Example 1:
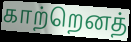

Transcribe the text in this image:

காற்றெனத்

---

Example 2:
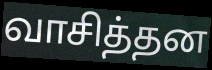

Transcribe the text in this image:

வாசித்தன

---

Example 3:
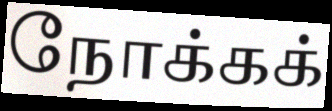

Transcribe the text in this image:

நோக்கக்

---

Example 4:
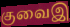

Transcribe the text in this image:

குவைஇ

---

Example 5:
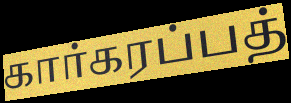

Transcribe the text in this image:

கார்கரப்பத்